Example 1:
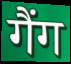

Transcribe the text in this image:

गैंग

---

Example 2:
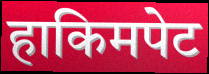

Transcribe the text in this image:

हाकिमपेट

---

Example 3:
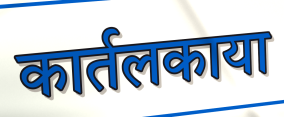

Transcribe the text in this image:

कार्तलकाया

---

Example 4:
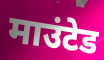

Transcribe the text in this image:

माउंटेड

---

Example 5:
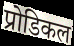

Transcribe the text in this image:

प्रोडिकल